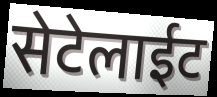
सेटेलाईट